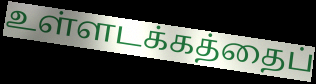
உள்ளடக்கத்தைப்